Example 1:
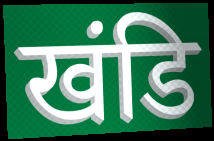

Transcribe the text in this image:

खंडि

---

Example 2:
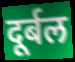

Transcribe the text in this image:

दूर्बल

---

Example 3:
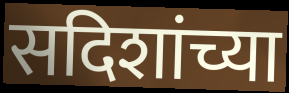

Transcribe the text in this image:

सदिशांच्या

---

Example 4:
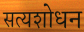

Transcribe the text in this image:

सत्यशोधन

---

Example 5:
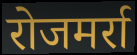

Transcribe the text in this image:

रोजमर्रा